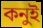
কনুই